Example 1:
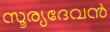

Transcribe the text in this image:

സൂര്യദേവൻ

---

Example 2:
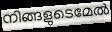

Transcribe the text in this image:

നിങ്ങളുടെമേൽ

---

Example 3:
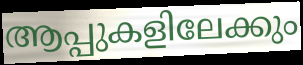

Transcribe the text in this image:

ആപ്പുകളിലേക്കും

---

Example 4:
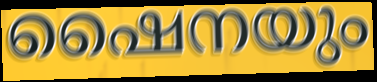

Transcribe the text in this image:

ഷൈനയും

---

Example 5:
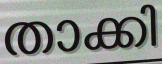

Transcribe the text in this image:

താക്കി